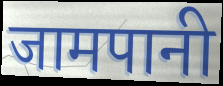
जामपानी